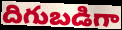
దిగుబడిగా